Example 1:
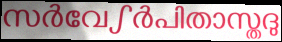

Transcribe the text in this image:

സർവേഽർപിതാസ്തദു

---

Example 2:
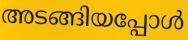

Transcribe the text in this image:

അടങ്ങിയപ്പോൾ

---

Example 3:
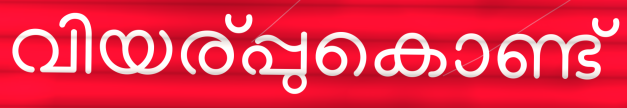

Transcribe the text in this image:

വിയര്പ്പുകൊണ്ട്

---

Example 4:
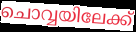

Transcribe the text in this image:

ചൊവ്വയിലേക്ക്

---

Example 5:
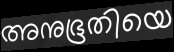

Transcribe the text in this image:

അനുഭൂതിയെ